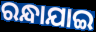
ରନ୍ଧାଯାଇ